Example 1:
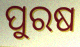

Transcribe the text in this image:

ପୁରଷ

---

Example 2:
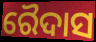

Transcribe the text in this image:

ରୈଦାସ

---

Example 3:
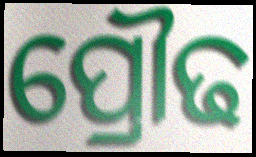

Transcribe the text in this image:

ପ୍ରୌଢ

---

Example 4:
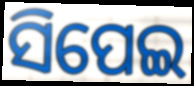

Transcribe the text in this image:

ସିପେଇ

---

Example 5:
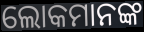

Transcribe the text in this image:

ଲୋକମାନଙ୍କ